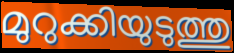
മുറുക്കിയുടുത്തു